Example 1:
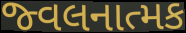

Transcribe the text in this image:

જ્વલનાત્મક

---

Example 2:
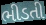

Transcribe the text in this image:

ભીડતી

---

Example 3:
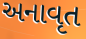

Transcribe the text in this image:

અનાવૃત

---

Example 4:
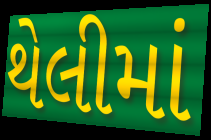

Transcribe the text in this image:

થેલીમાં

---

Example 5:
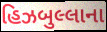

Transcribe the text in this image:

હિઝબુલ્લાના